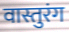
वास्तुरंग